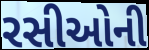
રસીઓની